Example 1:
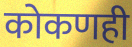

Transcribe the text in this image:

कोकणही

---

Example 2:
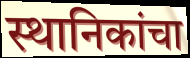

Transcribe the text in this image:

स्थानिकांचा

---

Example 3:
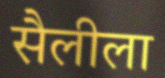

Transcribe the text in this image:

सैलीला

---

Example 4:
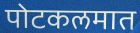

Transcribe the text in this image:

पोटकलमात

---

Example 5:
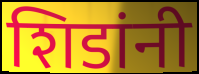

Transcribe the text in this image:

शिडांनी